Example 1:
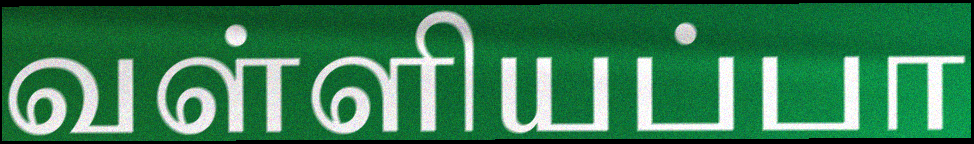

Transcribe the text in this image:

வள்ளியப்பா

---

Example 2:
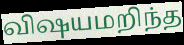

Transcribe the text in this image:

விஷயமறிந்த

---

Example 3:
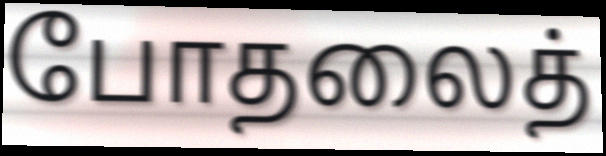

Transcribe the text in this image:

போதலைத்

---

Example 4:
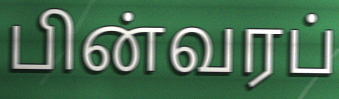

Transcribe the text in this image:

பின்வரப்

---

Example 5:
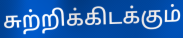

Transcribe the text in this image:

சுற்றிக்கிடக்கும்